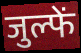
जुल्फें